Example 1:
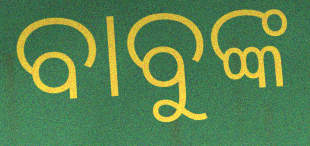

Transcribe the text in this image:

ବାବୁଙ୍କ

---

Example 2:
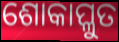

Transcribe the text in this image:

ଶୋକାପ୍ଳୁତ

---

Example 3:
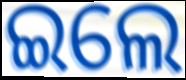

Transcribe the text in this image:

ଇଲେ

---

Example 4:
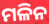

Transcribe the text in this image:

ମଳିନ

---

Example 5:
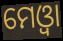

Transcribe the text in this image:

ମେଓ୍ୱା